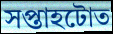
সপ্তাহটোত